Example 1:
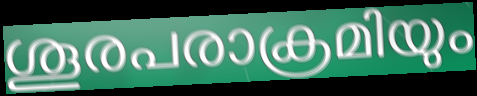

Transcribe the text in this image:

ശൂരപരാക്രമിയും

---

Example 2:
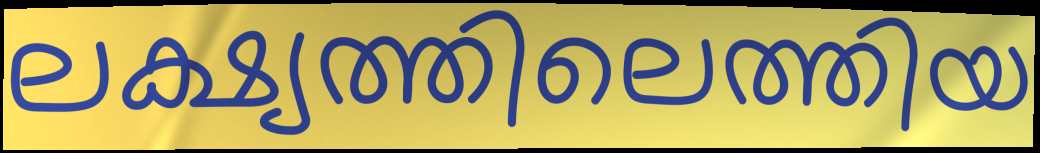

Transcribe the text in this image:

ലക്ഷ്യത്തിലെത്തിയ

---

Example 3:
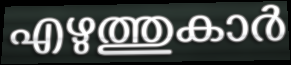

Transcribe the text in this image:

എഴുത്തുകാർ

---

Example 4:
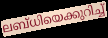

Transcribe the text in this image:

ലബ്ധിയെക്കുറിച്ച്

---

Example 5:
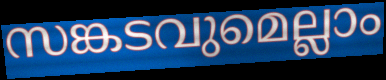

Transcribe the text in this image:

സങ്കടവുമെല്ലാം